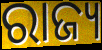
ରାଜ୍ୟ